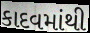
કાદવમાંથી